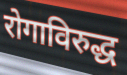
रोगाविरुद्ध